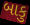
બાકુ